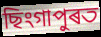
ছিংগাপুৰত